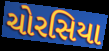
ચોરસિયા